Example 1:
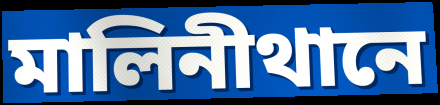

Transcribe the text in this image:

মালিনীথানে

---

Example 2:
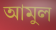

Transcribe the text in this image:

আমুল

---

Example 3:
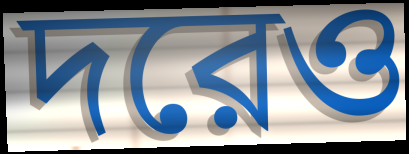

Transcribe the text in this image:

দরেও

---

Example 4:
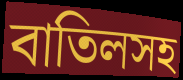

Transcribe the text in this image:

বাতিলসহ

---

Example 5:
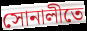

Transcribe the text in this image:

সোনালীতে